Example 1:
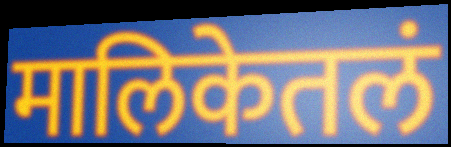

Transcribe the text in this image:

मालिकेतलं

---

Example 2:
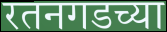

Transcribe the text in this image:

रतनगडच्या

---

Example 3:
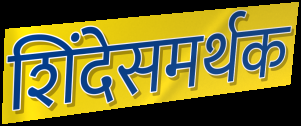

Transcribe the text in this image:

शिंदेसमर्थक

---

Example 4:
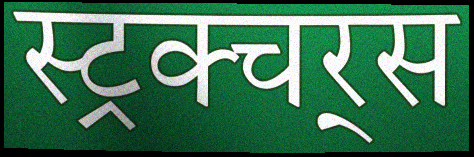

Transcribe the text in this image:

स्ट्रक्चर्स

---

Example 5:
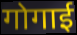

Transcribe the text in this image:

गोगाई